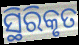
ସ୍ଥିରିକୃତ